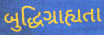
બુદ્ધિગ્રાહ્યતા